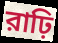
রাঢ়ি